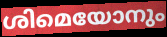
ശിമെയോനും